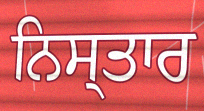
ਨਿਸ੍ਤਾਰ